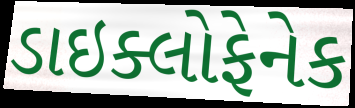
ડાઇક્લોફેનેક